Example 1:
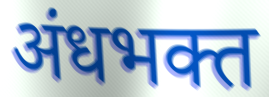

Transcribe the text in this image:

अंधभक्त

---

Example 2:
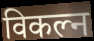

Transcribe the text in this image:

विकल्न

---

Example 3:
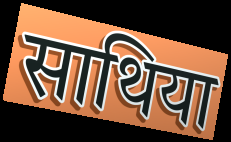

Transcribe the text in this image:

साथिया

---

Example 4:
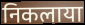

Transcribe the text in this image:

निकलाया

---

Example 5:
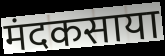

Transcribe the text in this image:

मंदकसाया